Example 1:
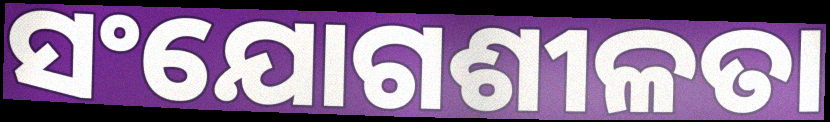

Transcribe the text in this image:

ସଂଯୋଗଶୀଳତା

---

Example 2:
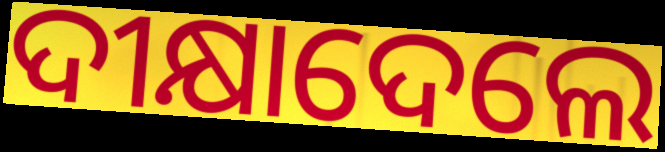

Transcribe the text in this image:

ଦୀକ୍ଷାଦେଲେ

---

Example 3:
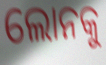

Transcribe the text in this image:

ଲୋନକୁ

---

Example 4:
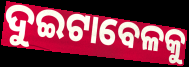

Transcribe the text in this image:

ଦୁଇଟାବେଳକୁ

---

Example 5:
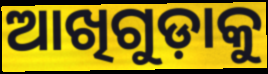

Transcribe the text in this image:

ଆଖିଗୁଡ଼ାକୁ